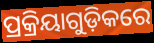
ପ୍ରକ୍ରିୟାଗୁଡ଼ିକରେ